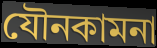
যৌনকামনা